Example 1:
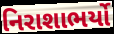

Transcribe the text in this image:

નિરાશાભર્યો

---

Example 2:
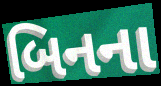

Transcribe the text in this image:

બિનના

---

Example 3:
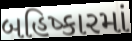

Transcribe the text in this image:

બહિષ્કારમાં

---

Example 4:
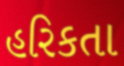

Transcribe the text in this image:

હરિકતા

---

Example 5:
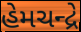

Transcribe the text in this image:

હેમચન્દ્રે